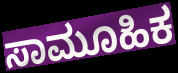
ಸಾಮೂಹಿಕ